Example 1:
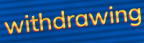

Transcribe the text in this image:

withdrawing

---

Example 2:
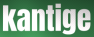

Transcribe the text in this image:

kantige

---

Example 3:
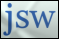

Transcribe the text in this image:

jsw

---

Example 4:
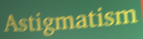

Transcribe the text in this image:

Astigmatism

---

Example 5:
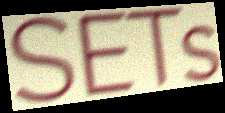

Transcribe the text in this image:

SETs